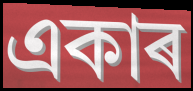
একাৰ